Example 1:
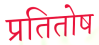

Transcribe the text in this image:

प्रतितोष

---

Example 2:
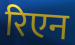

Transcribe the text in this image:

रिएन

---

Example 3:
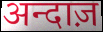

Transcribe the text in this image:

अन्दाज़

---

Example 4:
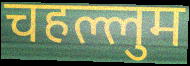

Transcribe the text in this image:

चहल्लुम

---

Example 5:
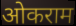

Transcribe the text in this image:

ओकराम